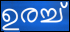
ഉരച്ച്